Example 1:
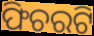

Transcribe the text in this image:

ଫିଚରଟି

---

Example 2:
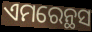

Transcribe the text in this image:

ଏମରେନ୍ଥସ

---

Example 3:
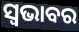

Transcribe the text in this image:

ସ୍ୱଭାବର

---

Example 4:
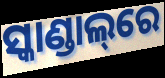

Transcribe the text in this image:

ସ୍କାଣ୍ଡାଲ୍‌ରେ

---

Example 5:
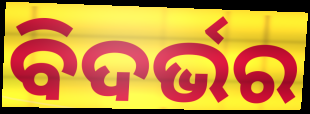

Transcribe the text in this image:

ବିଦର୍ଭର